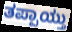
ತಪ್ಪಾಯ್ತು